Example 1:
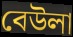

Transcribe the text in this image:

বেউলা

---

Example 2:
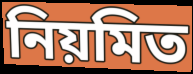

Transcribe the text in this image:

নিয়মিত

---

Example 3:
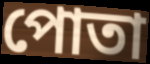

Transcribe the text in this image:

পোতা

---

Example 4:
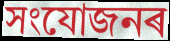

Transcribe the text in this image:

সংযোজনৰ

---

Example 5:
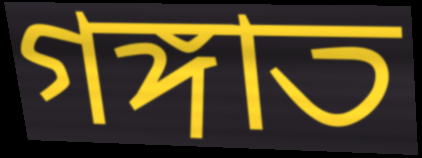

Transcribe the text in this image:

গঙ্গাত